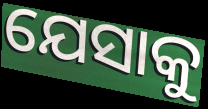
ଯେସାକୁ